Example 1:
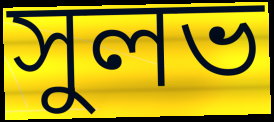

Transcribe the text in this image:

সুলভ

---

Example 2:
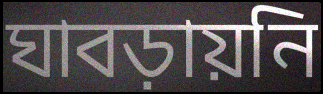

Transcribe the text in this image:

ঘাবড়ায়নি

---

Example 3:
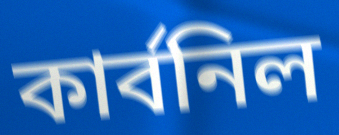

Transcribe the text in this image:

কার্বনিল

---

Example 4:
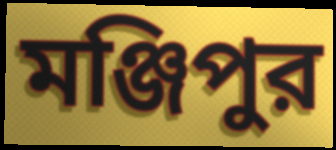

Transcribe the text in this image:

মঞ্জিপুর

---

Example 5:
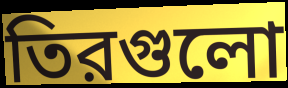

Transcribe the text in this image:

তিরগুলো